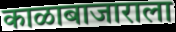
काळाबाजाराला